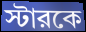
স্টারকে